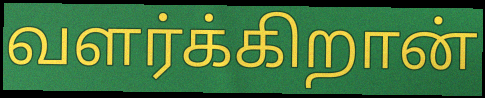
வளர்க்கிறான்